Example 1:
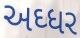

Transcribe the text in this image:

અઘ્ધર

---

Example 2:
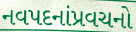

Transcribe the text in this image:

નવપદનાંપ્રવચનો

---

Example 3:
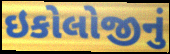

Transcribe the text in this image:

ઇકોલોજીનું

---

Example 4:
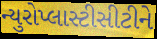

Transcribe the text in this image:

ન્યુરોપ્લાસ્ટીસીટીને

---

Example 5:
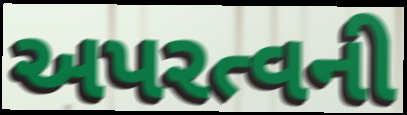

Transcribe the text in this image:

અપરત્વની